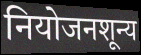
नियोजनशून्य